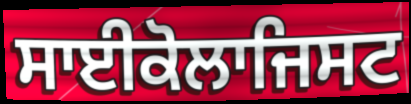
ਸਾਈਕੋਲਾਜਿਸਟ